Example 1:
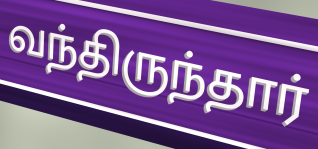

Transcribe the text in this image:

வந்திருந்தார்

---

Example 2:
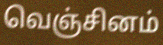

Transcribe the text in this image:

வெஞ்சினம்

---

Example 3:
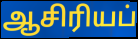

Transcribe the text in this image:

ஆசிரியப்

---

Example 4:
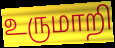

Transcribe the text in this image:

உருமாறி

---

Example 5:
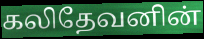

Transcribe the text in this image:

கலிதேவனின்